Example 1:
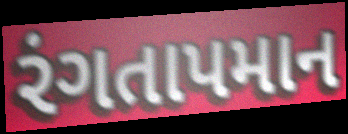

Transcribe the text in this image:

રંગતાપમાન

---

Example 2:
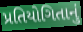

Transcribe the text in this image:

પ્રતિયોગિતાનું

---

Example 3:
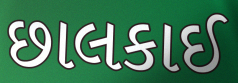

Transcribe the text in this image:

છાલકાઈ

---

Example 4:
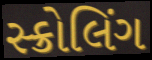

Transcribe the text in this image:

સ્ક્રોલિંગ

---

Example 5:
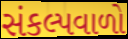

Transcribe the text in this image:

સંકલ્પવાળો